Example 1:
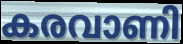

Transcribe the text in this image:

കരവാണി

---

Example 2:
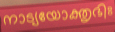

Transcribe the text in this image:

നാട്യയോക്തൃഭിഃ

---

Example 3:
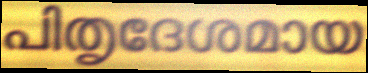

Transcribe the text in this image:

പിതൃദേശമായ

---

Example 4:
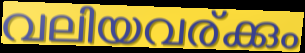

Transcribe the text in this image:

വലിയവര്ക്കും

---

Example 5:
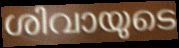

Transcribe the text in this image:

ശിവായുടെ